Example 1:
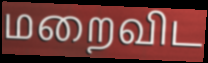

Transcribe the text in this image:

மறைவிட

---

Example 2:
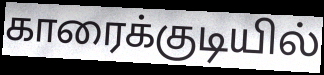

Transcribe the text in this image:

காரைக்குடியில்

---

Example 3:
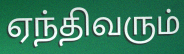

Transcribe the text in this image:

ஏந்திவரும்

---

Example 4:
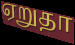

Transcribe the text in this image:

ஏறுதா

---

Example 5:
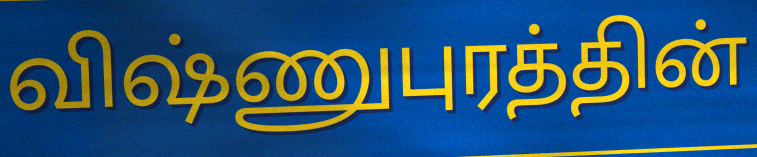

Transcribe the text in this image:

விஷ்ணுபுரத்தின்